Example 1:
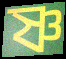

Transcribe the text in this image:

ষ্ণ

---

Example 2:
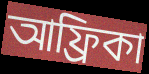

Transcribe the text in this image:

আফ্ৰিকা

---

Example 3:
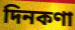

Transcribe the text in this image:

দিনকণা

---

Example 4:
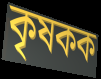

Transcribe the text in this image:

কৃষকক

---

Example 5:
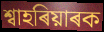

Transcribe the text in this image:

শ্বাহৰিয়াৰক